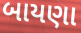
બાયણા